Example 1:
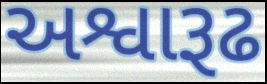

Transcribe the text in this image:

અશ્વારૂઢ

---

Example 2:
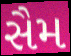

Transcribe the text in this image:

સૈમ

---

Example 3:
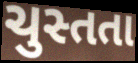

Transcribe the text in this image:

ચુસ્તતા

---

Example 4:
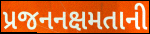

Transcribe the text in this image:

પ્રજનનક્ષમતાની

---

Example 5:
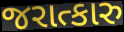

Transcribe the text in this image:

જરાત્કારુ